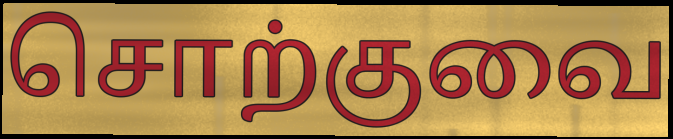
சொற்குவை